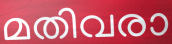
മതിവരാ